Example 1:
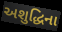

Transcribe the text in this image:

અશુદ્ધિના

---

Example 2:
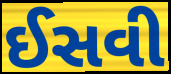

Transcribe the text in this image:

ઈસવી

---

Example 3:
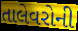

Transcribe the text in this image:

તાલેવરોની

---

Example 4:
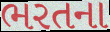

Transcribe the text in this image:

ભરતના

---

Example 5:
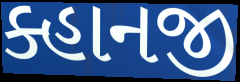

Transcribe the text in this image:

ક્હાનજી